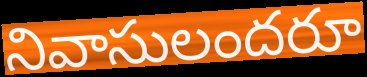
నివాసులందరూ